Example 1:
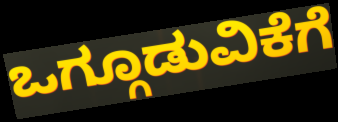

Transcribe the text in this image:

ಒಗ್ಗೂಡುವಿಕೆಗೆ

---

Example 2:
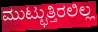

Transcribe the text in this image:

ಮುಟ್ಟುತ್ತಿರಲಿಲ್ಲ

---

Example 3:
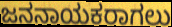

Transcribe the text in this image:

ಜನನಾಯಕರಾಗಲು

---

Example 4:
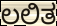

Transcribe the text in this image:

ಲಲಿತ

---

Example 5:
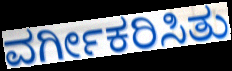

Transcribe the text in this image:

ವರ್ಗೀಕರಿಸಿತು